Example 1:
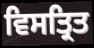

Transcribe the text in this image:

ਵਿਸਤ੍ਰਿਤ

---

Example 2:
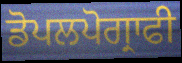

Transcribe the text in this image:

ਡੋਪਲਪੋਗ੍ਰਾਫੀ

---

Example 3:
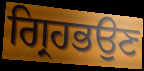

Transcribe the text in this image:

ਗ੍ਰਿਹਭਉਣ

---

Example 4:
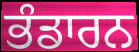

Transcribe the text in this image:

ਭੰਡਾਰਨ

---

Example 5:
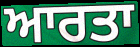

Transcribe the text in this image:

ਆਰਤਾ